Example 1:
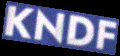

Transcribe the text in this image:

KNDF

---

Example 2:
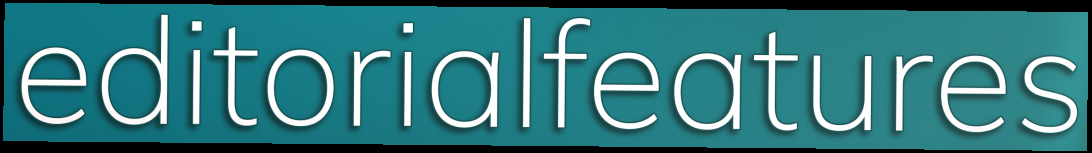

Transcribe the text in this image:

editorialfeatures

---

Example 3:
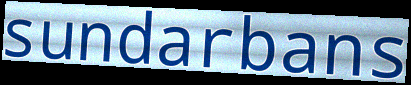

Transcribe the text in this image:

sundarbans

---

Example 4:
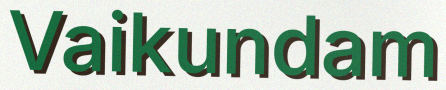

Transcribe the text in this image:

Vaikundam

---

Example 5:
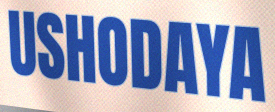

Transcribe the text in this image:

USHODAYA